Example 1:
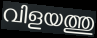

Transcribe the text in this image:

വിളയത്തു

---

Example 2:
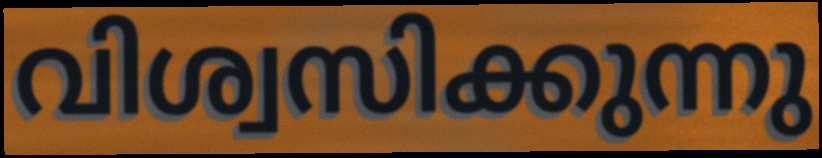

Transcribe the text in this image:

വിശ്വസിക്കുന്നു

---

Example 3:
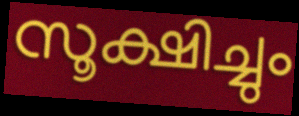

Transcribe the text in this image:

സൂക്ഷിച്ചും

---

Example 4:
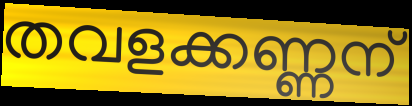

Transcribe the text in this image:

തവളക്കണ്ണന്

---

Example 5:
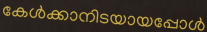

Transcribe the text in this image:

കേൾക്കാനിടയായപ്പോൾ